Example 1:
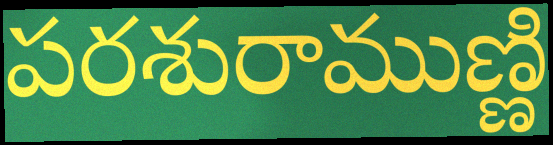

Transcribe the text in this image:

పరశురాముణ్ణి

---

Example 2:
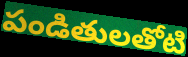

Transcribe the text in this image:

పండితులతోటి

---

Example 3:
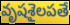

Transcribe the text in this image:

వృషశైలపతే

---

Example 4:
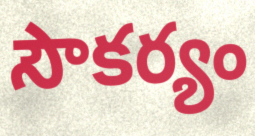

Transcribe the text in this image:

సౌకర్యం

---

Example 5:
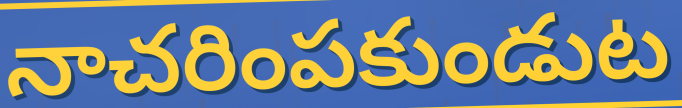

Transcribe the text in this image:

నాచరింపకుండుట